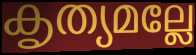
കൃത്യമല്ലേ